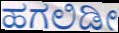
ಹಗಲಿಡೀ